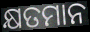
କ୍ଷତମାନ